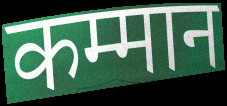
कम्मान